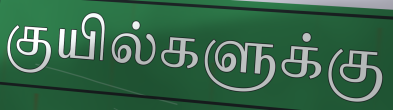
குயில்களுக்கு